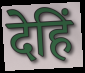
देहिं